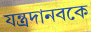
যন্ত্রদানবকে